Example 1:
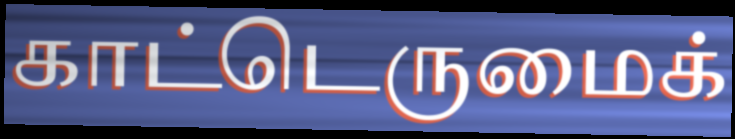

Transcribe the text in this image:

காட்டெருமைக்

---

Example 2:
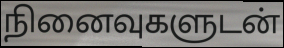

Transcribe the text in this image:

நினைவுகளுடன்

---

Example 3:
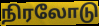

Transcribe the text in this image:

நிரலோடு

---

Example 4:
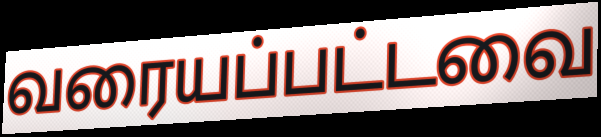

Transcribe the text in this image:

வரையப்பட்டவை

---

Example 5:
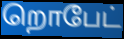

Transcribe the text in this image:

றொபேட்